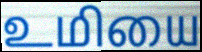
உமியை